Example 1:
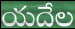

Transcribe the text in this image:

యదేల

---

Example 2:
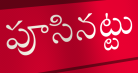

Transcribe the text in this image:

పూసినట్టు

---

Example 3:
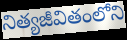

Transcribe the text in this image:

నిత్యజీవితంలోని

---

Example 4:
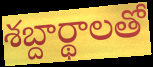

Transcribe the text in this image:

శబ్దార్థాలతో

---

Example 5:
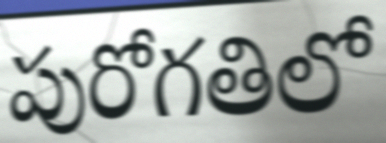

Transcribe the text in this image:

పురోగతిలో